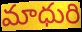
మాధురి